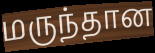
மருந்தான